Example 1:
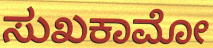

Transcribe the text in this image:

ಸುಖಕಾಮೋ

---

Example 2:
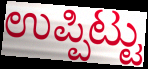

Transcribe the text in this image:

ಉಪ್ಪಿಟ್ಟು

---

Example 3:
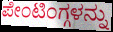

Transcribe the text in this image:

ಪೇಂಟಿಂಗ್ಗಳನ್ನು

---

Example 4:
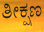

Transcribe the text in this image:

ತೀಕ್ಷಣ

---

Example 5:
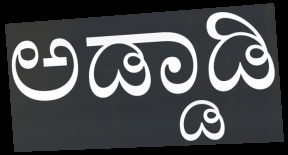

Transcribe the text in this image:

ಅಡ್ಡಾಡಿ